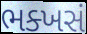
ભક્ખસં